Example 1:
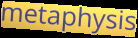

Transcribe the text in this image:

metaphysis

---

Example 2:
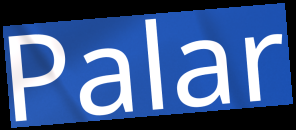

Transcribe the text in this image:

Palar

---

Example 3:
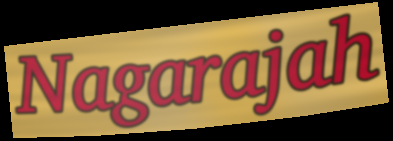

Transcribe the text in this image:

Nagarajah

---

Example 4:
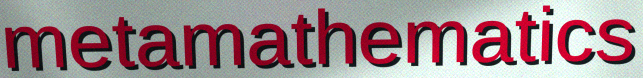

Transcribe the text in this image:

metamathematics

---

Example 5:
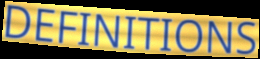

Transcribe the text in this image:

DEFINITIONS